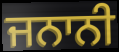
ਜਨਾਨੀ